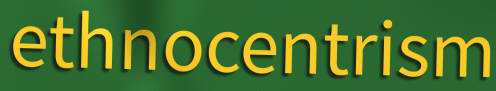
ethnocentrism